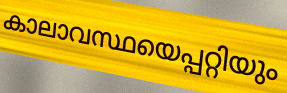
കാലാവസ്ഥയെപ്പറ്റിയും